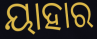
ୟାହାର